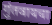
गुंतवायचा